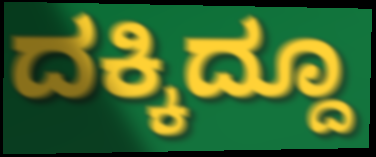
ದಕ್ಕಿದ್ದೂ